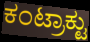
ಕಂಟ್ರಾಕ್ಟು